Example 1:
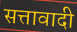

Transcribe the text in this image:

सत्तावादी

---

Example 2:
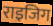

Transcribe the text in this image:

राइजिग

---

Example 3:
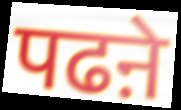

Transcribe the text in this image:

पढऩे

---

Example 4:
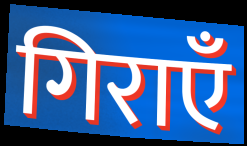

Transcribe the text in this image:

गिराएँ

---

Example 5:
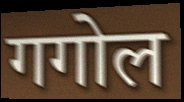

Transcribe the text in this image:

गगोल